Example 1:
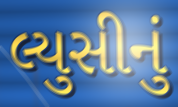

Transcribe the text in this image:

લ્યુસીનું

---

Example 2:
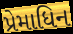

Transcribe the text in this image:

પ્રેમાધિન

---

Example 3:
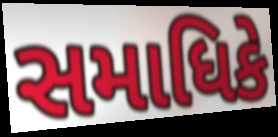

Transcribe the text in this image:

સમાધિકે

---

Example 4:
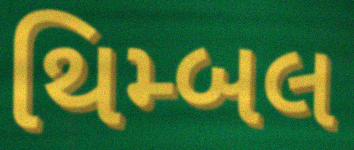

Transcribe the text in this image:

થિમ્બલ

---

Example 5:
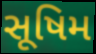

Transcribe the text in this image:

સૂષિમ